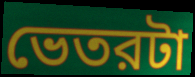
ভেতরটা